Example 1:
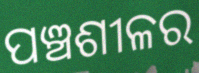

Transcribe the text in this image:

ପଞ୍ଚଶୀଳର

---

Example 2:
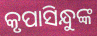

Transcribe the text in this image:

କୃପାସିନ୍ଧୁଙ୍କ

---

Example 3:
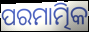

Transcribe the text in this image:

ପରମାତ୍ମିକ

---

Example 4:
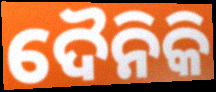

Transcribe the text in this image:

ଦୈନିକି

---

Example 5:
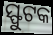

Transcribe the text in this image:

ସ୍ଫୁଟକ